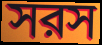
সরস